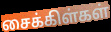
சைக்கிள்கள்